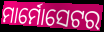
ମାର୍ମୋସେଟର